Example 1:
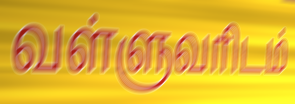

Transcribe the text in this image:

வள்ளுவரிடம்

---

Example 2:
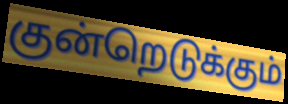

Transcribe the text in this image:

குன்றெடுக்கும்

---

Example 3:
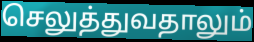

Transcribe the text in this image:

செலுத்துவதாலும்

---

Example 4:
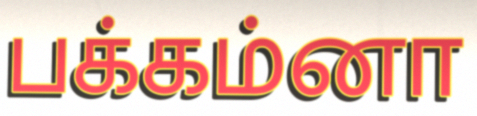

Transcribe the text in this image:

பக்கம்னா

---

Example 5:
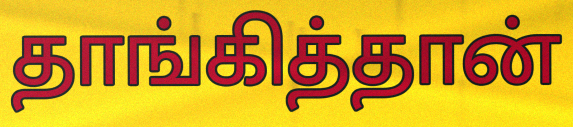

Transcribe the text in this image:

தாங்கித்தான்